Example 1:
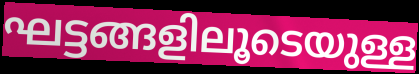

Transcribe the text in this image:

ഘട്ടങ്ങളിലൂടെയുള്ള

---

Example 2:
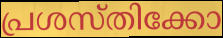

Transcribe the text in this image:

പ്രശസ്തിക്കോ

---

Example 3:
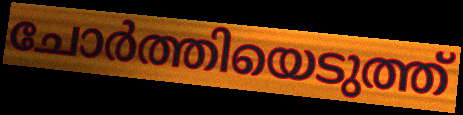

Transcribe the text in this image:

ചോർത്തിയെടുത്ത്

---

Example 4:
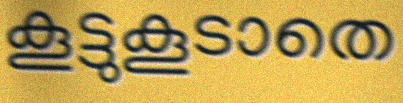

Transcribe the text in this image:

കൂട്ടുകൂടാതെ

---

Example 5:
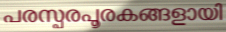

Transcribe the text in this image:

പരസ്പരപൂരകങ്ങളായി